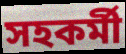
সহকর্মী